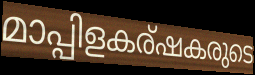
മാപ്പിളകര്ഷകരുടെ